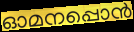
ഓമനപ്പൊൻ